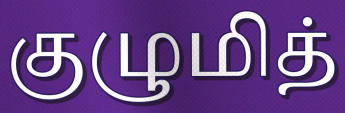
குழுமித்